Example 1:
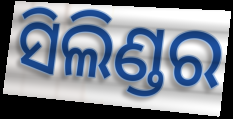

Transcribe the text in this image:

ସିଲିଣ୍ଡର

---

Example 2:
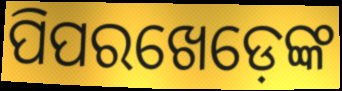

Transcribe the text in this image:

ପିପରଖେଡ଼େଙ୍କ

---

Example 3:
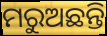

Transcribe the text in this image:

ମରୁଅଛନ୍ତି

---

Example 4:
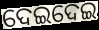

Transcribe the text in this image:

ଦେଇଦେଇ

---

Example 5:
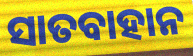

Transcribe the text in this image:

ସାତବାହାନ